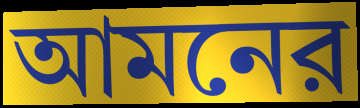
আমনের